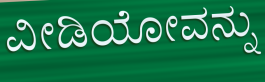
ವೀಡಿಯೋವನ್ನು